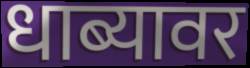
धाब्यावर